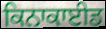
ਕਿਨਾਕਾਈਡ